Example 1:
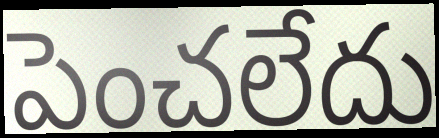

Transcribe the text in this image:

పెంచలేదు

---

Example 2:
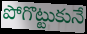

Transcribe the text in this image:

పోగొట్టుకునే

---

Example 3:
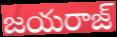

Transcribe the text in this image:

జయరాజ్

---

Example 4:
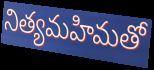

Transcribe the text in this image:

నిత్యమహిమతో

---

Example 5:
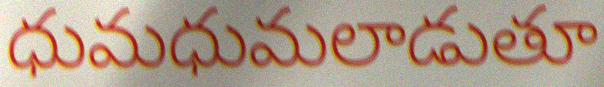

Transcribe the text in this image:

ధుమధుమలాడుతూ